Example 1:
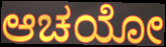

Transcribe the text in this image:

ಆಚಯೋ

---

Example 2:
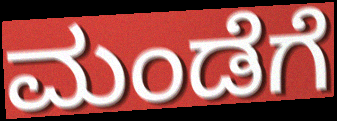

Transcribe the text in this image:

ಮಂಡೆಗೆ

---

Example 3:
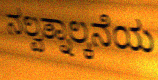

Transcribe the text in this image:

ನಲ್ವತ್ನಾಲ್ಕನೆಯ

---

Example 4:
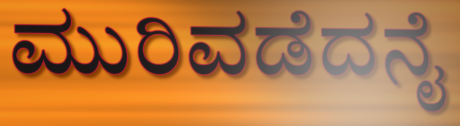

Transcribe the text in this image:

ಮುರಿವಡೆದನೈ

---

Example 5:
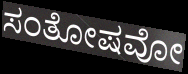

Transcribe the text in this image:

ಸಂತೋಷವೋ